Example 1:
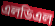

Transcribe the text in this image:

এলডিএল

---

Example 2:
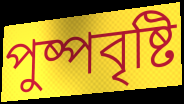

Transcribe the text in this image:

পুষ্পবৃষ্টি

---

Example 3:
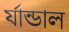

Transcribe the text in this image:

র্যান্ডাল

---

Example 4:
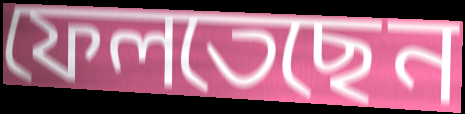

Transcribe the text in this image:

ফেলতেছেন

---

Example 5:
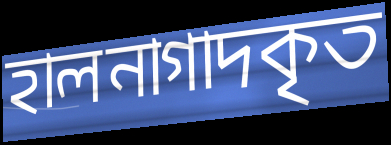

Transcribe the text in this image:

হালনাগাদকৃত